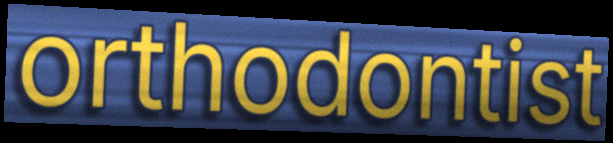
orthodontist